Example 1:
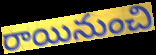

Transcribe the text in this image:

రాయినుంచి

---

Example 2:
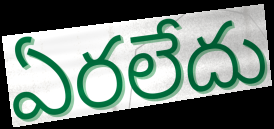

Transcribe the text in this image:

ఏరలేదు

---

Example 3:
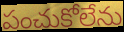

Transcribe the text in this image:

పంచుకోలేను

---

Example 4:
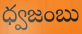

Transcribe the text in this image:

ధ్వజంబు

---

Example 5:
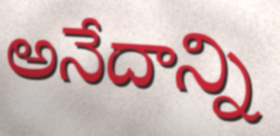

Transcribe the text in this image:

అనేదాన్ని